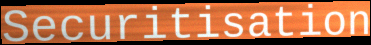
Securitisation